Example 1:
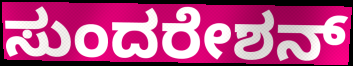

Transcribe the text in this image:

ಸುಂದರೇಶನ್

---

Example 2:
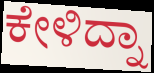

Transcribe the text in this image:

ಕೇಳಿದ್ನಾ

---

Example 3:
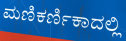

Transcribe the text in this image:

ಮಣಿಕರ್ಣಿಕಾದಲ್ಲಿ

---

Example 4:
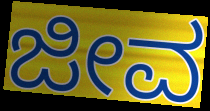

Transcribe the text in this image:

ಜೀವ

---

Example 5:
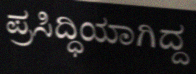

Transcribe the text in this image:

ಪ್ರಸಿದ್ಧಿಯಾಗಿದ್ದ